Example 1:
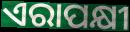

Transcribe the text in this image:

ଏରାପକ୍ଷୀ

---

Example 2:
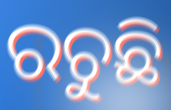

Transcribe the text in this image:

ରଚୁଛି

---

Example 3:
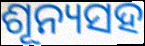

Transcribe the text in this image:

ଶୂନ୍ୟସହ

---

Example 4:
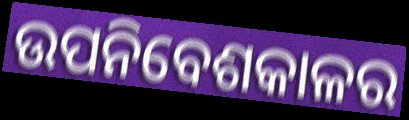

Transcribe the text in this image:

ଉପନିବେଶକାଳର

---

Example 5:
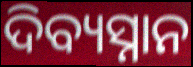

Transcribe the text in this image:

ଦିବ୍ୟସ୍ନାନ